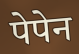
पेपेन